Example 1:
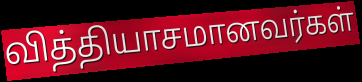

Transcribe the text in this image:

வித்தியாசமானவர்கள்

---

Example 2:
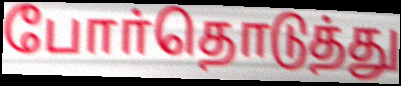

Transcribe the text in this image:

போர்தொடுத்து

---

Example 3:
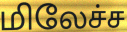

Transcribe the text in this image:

மிலேச்ச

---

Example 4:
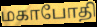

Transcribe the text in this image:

மகாபோதி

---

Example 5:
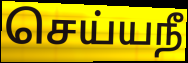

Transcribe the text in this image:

செய்யநீ